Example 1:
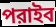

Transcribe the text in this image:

পরাইব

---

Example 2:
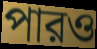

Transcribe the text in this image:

পারও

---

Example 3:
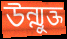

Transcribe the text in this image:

উন্মুক্ত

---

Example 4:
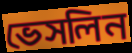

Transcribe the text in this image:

ভেসলিন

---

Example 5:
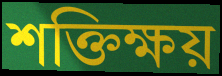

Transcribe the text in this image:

শক্তিক্ষয়